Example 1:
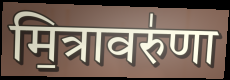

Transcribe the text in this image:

मि॒त्रावरु॑णा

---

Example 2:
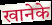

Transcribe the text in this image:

खानेके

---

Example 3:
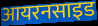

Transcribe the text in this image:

आयरनसाइड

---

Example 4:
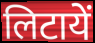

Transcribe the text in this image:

लिटायें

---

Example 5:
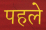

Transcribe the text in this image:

पहले